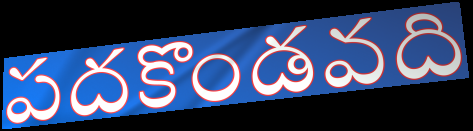
పదకొండవది